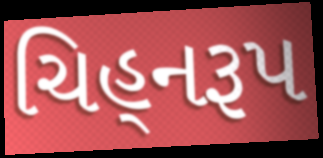
ચિહ્‌નરૂપ